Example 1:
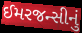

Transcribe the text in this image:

ઈમરજન્સીનું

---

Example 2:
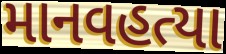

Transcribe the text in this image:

માનવહત્યા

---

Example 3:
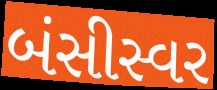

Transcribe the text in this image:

બંસીસ્વર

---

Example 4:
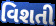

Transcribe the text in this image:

વિશતી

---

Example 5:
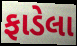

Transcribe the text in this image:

ફાડેલા